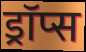
ड्रॉप्स